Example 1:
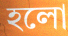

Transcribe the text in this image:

হলো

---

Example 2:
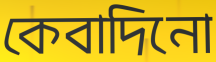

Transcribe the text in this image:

কেবাদিনো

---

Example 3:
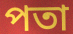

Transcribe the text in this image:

পতা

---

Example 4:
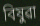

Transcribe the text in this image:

বিষুৱা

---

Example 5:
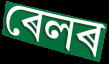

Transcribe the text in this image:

ৰেলৰ